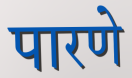
पारणे